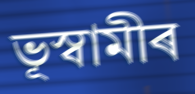
ভূস্বামীৰ